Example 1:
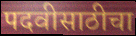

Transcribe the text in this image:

पदवीसाठीचा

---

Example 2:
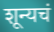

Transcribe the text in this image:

शून्यचं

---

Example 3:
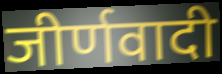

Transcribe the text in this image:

जीर्णवादी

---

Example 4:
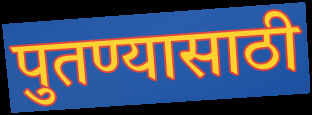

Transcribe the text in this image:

पुतण्यासाठी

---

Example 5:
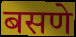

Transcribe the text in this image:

बसणे